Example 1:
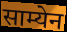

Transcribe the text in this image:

साम्येन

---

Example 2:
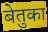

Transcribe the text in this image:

बेतुका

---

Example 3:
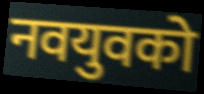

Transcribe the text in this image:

नवयुवको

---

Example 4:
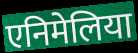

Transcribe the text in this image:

एनिमेलिया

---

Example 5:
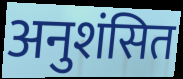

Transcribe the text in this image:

अनुशंसित